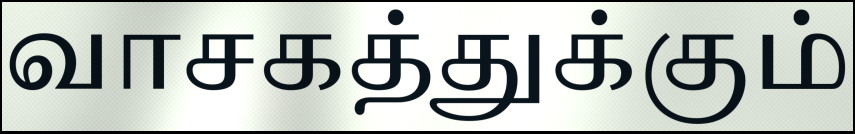
வாசகத்துக்கும்